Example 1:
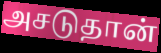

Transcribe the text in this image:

அசடுதான்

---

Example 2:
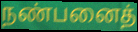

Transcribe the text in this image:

நண்பனைத்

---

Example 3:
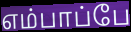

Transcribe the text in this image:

எம்பாப்பே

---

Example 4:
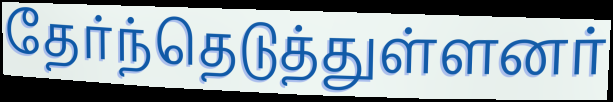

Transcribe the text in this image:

தேர்ந்தெடுத்துள்ளனர்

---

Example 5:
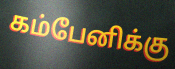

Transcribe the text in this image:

கம்பேனிக்கு